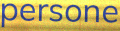
persone